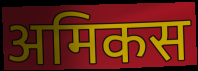
अमिकस